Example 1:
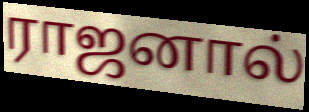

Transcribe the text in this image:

ராஜனால்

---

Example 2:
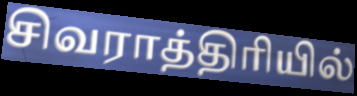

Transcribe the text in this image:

சிவராத்திரியில்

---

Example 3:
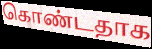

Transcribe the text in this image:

கொண்டதாக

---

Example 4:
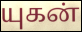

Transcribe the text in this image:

யுகன்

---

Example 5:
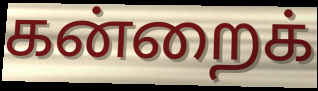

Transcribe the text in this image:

கன்றைக்